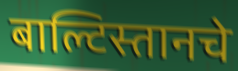
बाल्टिस्तानचे